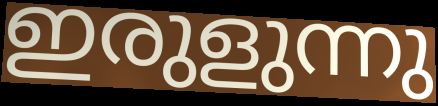
ഇരുളുന്നു